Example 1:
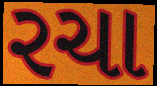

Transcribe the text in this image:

રચા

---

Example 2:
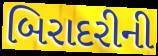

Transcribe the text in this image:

બિરાદરીની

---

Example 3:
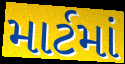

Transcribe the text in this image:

માર્ટમાં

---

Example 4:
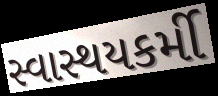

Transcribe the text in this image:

સ્વાસ્થયકર્મી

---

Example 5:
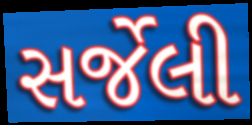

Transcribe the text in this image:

સર્જેલી